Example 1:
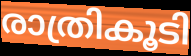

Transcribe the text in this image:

രാത്രികൂടി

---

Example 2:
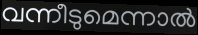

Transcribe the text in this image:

വന്നീടുമെന്നാൽ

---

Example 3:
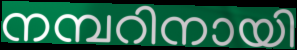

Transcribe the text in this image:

നമ്പറിനായി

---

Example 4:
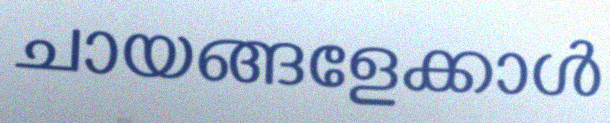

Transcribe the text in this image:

ചായങ്ങളേക്കാൾ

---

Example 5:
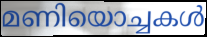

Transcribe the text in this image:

മണിയൊച്ചകൾ